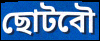
ছোটবৌ